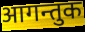
आगन्तुक